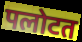
पलोटत